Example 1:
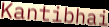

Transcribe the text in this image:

Kantibhai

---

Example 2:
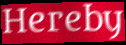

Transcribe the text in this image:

Hereby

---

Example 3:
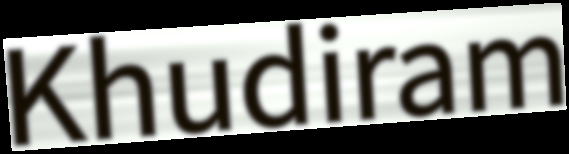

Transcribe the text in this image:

Khudiram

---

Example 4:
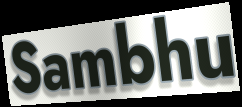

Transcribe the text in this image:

Sambhu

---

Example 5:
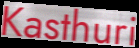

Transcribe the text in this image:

Kasthuri